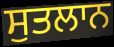
ਸੁਤਲਾਨ